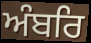
ਅੰਬਰਿ